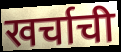
खर्चाची